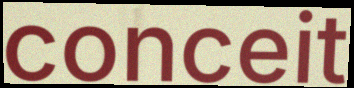
conceit